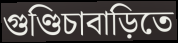
গুণ্ডিচাবাড়িতে